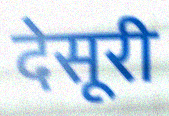
देसूरी